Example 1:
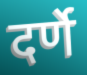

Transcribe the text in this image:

दर्णे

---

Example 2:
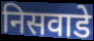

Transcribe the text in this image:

निसवाडे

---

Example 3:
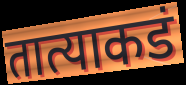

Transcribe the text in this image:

तात्याकडं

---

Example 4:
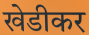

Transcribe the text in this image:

खेडीकर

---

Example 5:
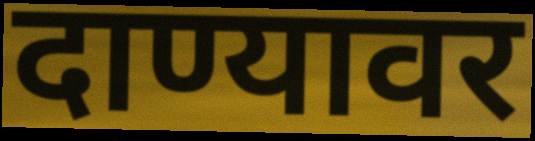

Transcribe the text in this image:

दाण्यावर